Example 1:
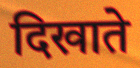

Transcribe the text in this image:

दिखाते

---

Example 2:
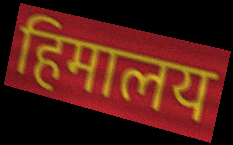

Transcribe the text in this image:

हिमालय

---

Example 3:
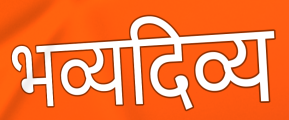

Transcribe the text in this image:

भव्यदिव्य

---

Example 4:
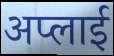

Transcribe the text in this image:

अप्लाई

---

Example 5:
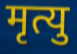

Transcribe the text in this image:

मृत्यु